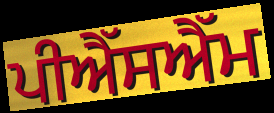
ਪੀਐੱਸਐੱਮ